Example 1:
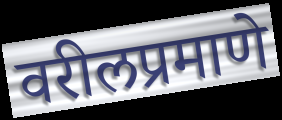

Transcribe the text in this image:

वरीलप्रमाणे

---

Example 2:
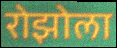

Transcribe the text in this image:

रोझोला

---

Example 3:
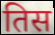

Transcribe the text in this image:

तिस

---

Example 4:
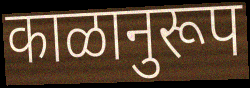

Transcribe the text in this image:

काळानुरूप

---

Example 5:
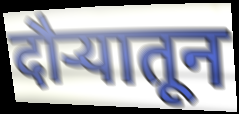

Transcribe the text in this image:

दौऱ्यातून